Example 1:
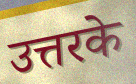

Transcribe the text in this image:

उत्तरके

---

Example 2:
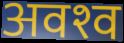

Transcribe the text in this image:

अवश्व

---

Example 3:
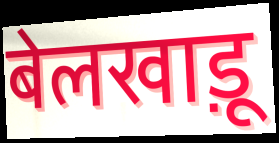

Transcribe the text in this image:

बेलखाड़ू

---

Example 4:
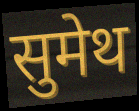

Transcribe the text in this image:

सुमेथ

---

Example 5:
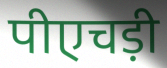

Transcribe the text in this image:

पीएचड़ी